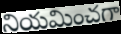
నియమించగా